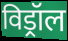
विड्रॉल